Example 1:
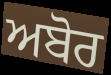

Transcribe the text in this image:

ਅਬੋਰ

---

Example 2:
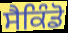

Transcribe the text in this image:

ਸੈਕਿੰਡੋ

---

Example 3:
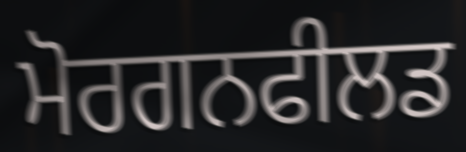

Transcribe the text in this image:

ਮੋਰਗਨਫੀਲਡ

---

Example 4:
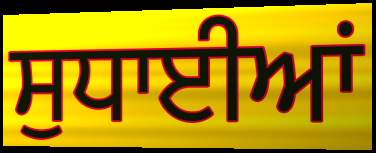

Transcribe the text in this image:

ਸੁਧਾਈਆਂ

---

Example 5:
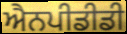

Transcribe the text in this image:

ਐਨਪੀਡੀਡੀ